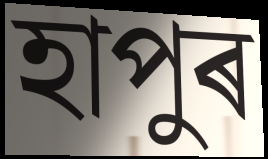
হাপুৰ